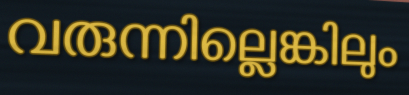
വരുന്നില്ലെങ്കിലും